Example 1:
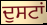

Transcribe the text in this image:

ਦੁਸਟਾਂ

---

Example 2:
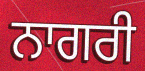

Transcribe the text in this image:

ਨਾਗਰੀ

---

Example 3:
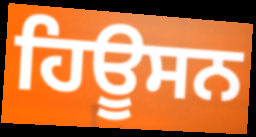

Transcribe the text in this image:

ਹਿਊਸਨ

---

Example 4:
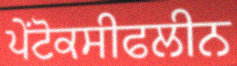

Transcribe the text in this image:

ਪੇਂਟੋਕਸੀਫਲੀਨ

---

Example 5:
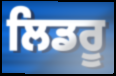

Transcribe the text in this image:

ਲਿਡਰੂ